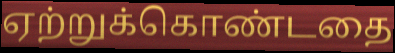
ஏற்றுக்கொண்டதை